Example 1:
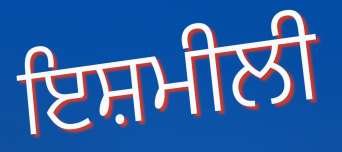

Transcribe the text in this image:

ਇਸ਼ਮੀਲੀ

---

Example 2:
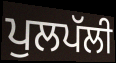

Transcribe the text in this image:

ਪੁਲਪੱਲੀ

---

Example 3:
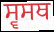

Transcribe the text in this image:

ਸ੍ਵਸਥ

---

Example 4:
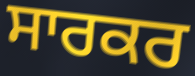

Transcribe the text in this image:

ਸਾਰਕਰ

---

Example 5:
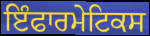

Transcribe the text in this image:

ਇੰਫਾਰਮੇਟਿਕਸ